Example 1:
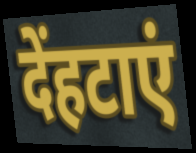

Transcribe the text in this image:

देंहटाएं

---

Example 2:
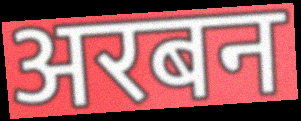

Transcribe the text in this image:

अरबन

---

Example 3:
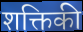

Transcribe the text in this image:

शक्तिकी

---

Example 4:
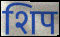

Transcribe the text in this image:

शिप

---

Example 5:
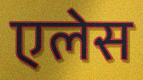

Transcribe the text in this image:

एलेस